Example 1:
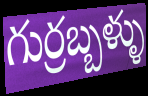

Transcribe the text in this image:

గుర్రబ్బళ్ళు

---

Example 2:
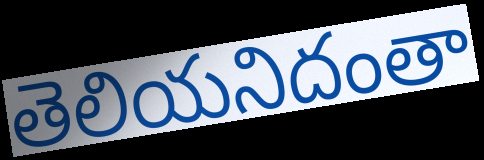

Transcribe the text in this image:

తెలియనిదంతా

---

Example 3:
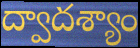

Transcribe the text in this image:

ద్వాదశ్యాం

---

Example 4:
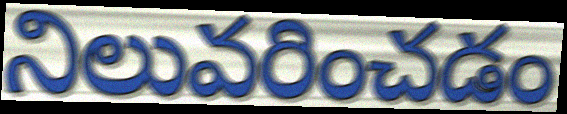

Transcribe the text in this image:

నిలువరించడం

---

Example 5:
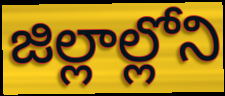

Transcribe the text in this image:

జిల్లాల్లోని